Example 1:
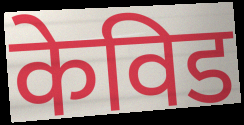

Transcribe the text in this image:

केविड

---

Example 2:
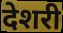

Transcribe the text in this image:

देशरी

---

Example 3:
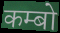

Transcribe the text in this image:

कम्बो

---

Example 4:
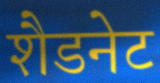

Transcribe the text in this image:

शैडनेट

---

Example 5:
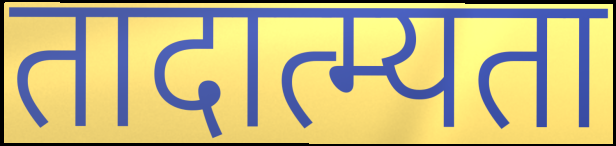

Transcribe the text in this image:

तादात्म्यता